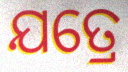
ଯତ୍ରେ